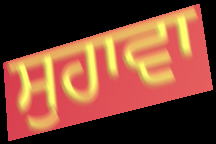
ਸੁਹਾਵਾ